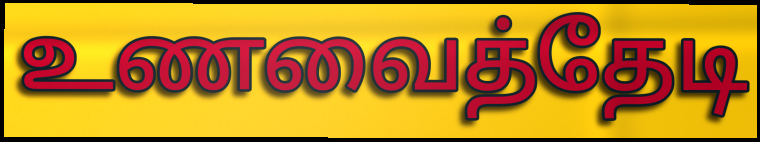
உணவைத்தேடி